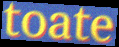
toate